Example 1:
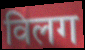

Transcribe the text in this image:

विलग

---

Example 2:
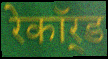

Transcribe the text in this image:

रेकॉर्ड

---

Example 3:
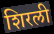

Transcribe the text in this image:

शिरली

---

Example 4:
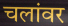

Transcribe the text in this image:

चलांवर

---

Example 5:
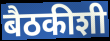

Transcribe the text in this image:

बैठकीशी